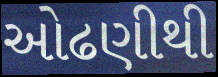
ઓઢણીથી